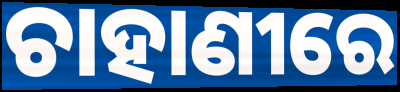
ଚାହାଣୀରେ